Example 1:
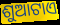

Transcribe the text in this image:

ଶୁଆଟାଏ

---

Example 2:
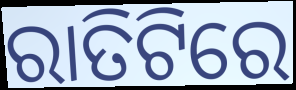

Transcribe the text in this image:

ରାତିଟିରେ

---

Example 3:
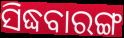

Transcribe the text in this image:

ସିଦ୍ଧବାରଙ୍ଗ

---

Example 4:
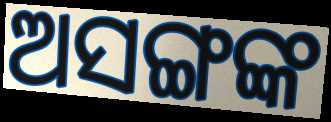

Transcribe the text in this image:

ଅସଙ୍ଗଙ୍କ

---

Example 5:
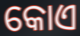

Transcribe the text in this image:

କୋଏ